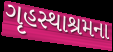
ગૃહસ્થાશ્રમના